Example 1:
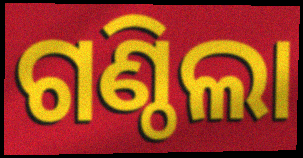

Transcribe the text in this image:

ଗଣ୍ଠିଲା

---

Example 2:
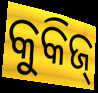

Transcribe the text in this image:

କୁକିଜ୍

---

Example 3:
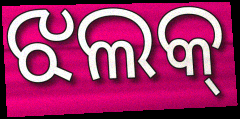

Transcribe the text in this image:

ଝଲକ୍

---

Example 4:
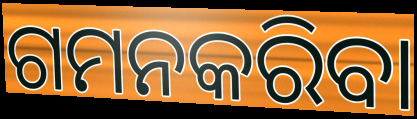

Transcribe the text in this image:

ଗମନକରିବା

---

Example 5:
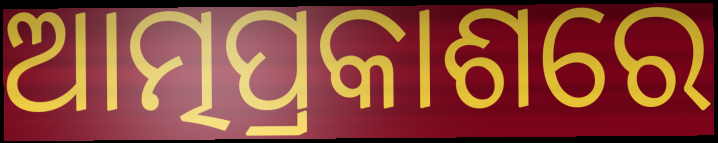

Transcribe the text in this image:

ଆତ୍ମପ୍ରକାଶରେ